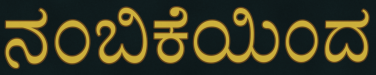
ನಂಬಿಕೆಯಿಂದ